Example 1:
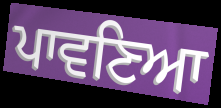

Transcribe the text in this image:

ਪਾਵਣਿਆ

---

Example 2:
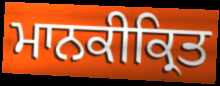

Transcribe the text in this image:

ਮਾਨਕੀਕ੍ਰਿਤ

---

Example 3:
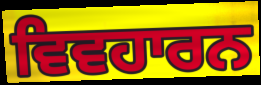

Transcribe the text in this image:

ਵਿਵਹਾਰਨ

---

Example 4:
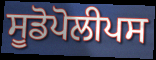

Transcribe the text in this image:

ਸੂਡੋਪੋਲੀਪਸ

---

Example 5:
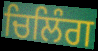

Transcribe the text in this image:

ਚਿਲਿੰਗ